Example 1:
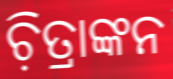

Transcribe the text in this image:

ଚ଼ିତ୍ରାଙ୍କନ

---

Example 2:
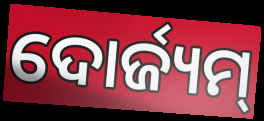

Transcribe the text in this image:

ଦୋର୍ଜ୍ୟମ୍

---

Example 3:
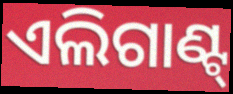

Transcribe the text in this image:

ଏଲିଗାଣ୍ଟ୍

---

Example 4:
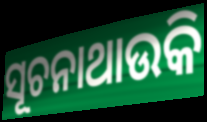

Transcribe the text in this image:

ସୂଚନାଥାଉକି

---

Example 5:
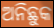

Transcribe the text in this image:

ଅନିଛୁକ